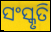
ସଂସ୍କୃତି